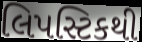
લિપસ્ટિકથી